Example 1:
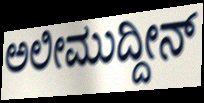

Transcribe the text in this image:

ಅಲೀಮುದ್ದೀನ್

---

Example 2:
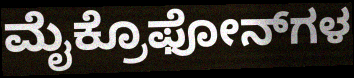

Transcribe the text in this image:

ಮೈಕ್ರೊಫೋನ್‌ಗಳ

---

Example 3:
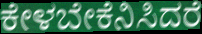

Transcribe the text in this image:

ಕೇಳಬೇಕೆನಿಸಿದರೆ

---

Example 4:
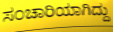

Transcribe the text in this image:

ಸಂಚಾರಿಯಾಗಿದ್ದು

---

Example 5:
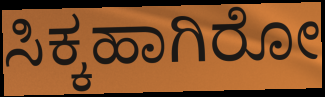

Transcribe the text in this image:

ಸಿಕ್ಕಹಾಗಿರೋ